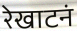
रेखाटनं